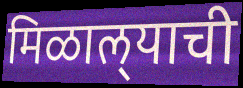
मिळाल्याची